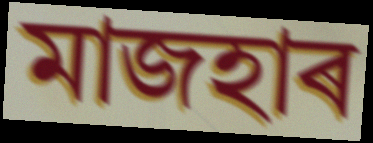
মাজহাৰ